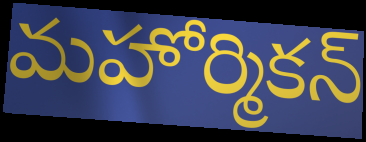
మహోర్మికన్